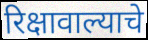
रिक्षावाल्याचे